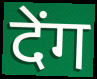
देंग